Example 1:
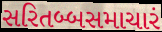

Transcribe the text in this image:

સરિતબ્બસમાચારં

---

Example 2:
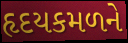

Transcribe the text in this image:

હૃદયકમળને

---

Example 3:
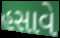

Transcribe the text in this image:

હસાવે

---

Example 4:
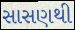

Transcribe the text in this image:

સાસણથી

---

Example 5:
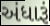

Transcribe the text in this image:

અંધારૂં